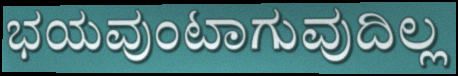
ಭಯವುಂಟಾಗುವುದಿಲ್ಲ